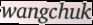
wangchuk